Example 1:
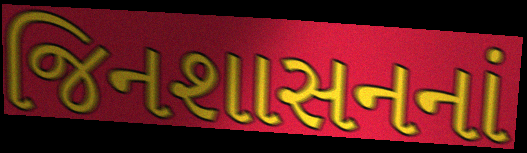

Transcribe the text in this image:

જિનશાસનનાં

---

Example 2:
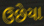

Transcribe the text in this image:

ઉછેયા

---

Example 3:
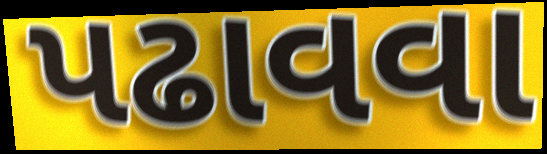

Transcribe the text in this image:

પઢાવવા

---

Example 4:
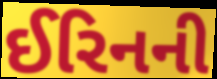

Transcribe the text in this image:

ઈરિનની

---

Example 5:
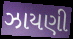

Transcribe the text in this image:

ઝાયણી